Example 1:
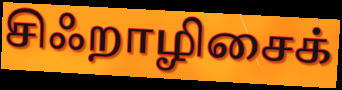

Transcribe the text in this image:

சிஃறாழிசைக்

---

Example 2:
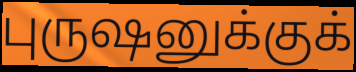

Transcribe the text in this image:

புருஷனுக்குக்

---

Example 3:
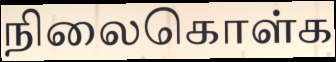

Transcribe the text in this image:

நிலைகொள்க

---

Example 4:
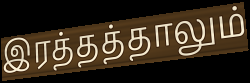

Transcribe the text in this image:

இரத்தத்தாலும்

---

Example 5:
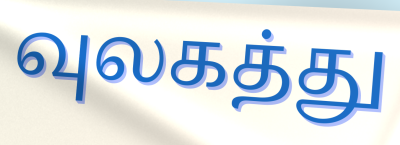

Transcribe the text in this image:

வுலகத்து